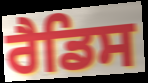
ਰੈਡਿਸ